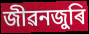
জীৱনজুৰি